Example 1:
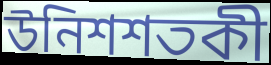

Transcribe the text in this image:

উনিশশতকী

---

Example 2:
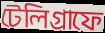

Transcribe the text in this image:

টেলিগ্রাফে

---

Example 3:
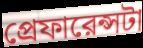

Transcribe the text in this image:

প্রেফারেন্সটা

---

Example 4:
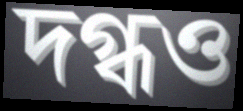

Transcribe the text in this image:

দগ্ধও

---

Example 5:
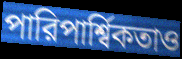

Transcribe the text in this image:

পারিপার্শ্বিকতাও